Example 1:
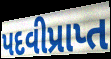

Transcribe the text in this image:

પદવીપ્રાપ્ત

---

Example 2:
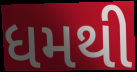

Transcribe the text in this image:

ધમથી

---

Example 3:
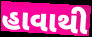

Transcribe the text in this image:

હાવાથી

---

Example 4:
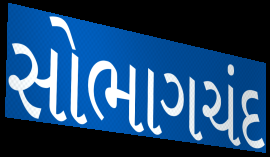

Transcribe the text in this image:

સોભાગચંદ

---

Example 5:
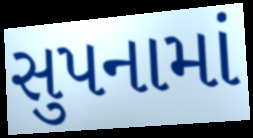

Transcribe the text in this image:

સુપનામાં